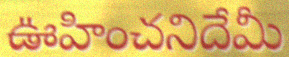
ఊహించనిదేమీ